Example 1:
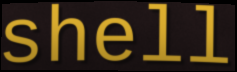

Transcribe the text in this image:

shell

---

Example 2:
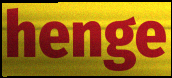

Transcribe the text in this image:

henge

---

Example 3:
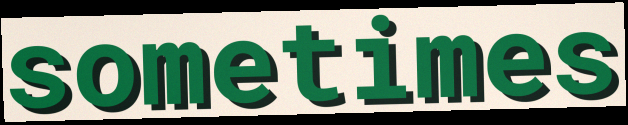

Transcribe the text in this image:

sometimes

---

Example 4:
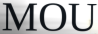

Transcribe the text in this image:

MOU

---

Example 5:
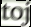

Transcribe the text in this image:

toj